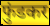
फुंडकर